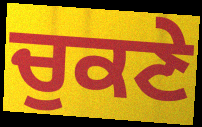
ਚੁਕਣੇ